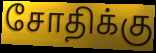
சோதிக்கு